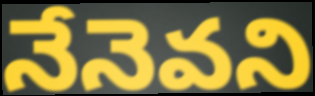
నేనెవని